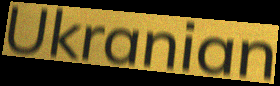
Ukranian